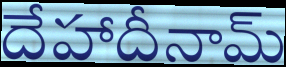
దేహాదీనామ్